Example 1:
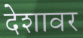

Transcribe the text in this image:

देशावर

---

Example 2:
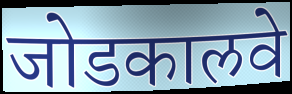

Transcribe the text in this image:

जोडकालवे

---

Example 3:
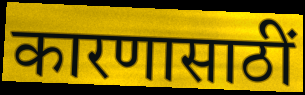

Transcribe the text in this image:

कारणासाठीं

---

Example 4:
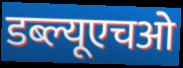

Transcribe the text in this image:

डब्ल्यूएचओ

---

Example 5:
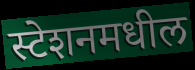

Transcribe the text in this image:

स्टेशनमधील